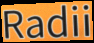
Radii